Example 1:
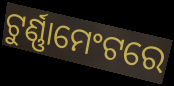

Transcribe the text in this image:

ଟୁର୍ଣ୍ଣାମେଂଟରେ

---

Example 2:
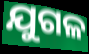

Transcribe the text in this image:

ଯୁଗଳ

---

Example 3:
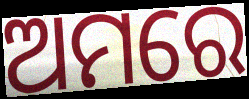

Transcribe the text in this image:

ଅମରେ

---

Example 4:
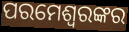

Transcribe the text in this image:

ପରମେଶ୍ଵରଙ୍କର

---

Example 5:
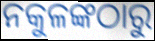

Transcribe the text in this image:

ନକୁଳଙ୍କଠାରୁ